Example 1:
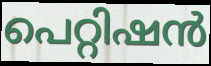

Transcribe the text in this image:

പെറ്റിഷൻ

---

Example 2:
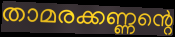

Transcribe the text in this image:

താമരക്കണ്ണന്റെ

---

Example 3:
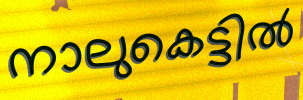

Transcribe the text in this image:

നാലുകെട്ടിൽ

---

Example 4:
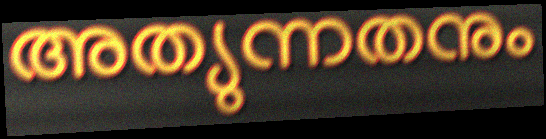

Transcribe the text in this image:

അത്യുന്നതനും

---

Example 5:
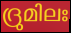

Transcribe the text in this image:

ദ്രുമിലഃ